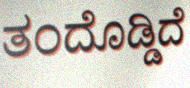
ತಂದೊಡ್ಡಿದೆ